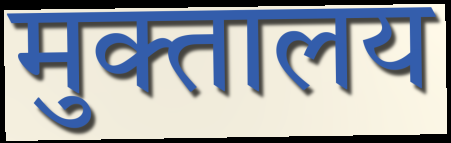
मुक्तालय